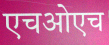
एचओएच